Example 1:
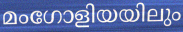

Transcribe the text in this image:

മംഗോളിയയിലും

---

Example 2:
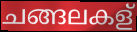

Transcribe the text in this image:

ചങ്ങലകള്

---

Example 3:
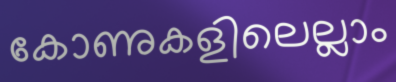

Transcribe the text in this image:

കോണുകളിലെല്ലാം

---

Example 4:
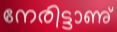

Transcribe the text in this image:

നേരിട്ടാണു്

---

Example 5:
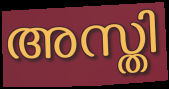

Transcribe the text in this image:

അസ്തി